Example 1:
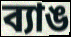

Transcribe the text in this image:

ব্যাঙ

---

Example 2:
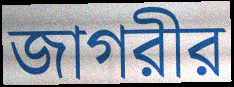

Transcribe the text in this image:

জাগরীর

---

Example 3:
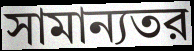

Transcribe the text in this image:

সামান্যতর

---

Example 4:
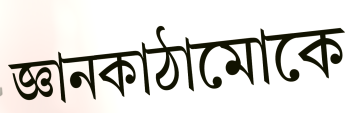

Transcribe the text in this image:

জ্ঞানকাঠামোকে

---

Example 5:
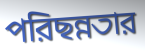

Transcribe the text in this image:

পরিছন্নতার